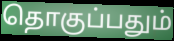
தொகுப்பதும்